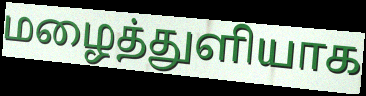
மழைத்துளியாக